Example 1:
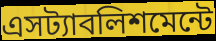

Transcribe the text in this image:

এসট্যাবলিশমেন্টে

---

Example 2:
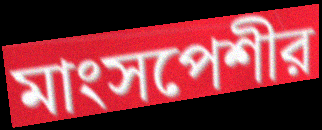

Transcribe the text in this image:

মাংসপেশীর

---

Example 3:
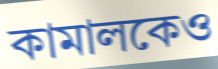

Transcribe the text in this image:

কামালকেও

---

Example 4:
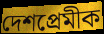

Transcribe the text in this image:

দেশপ্রেমীক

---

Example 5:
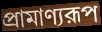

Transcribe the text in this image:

প্রামাণ্যরূপ